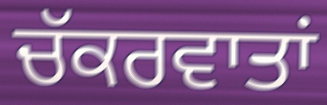
ਚੱਕਰਵਾਤਾਂ